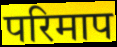
परिमाप